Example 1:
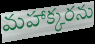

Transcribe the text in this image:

మహాక్కరను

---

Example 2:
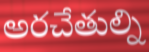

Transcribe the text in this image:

అరచేతుల్ని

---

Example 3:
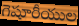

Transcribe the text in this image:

గెషూరీయుల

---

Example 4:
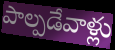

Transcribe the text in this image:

పాల్పడేవాళ్లు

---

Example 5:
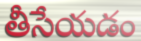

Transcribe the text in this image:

తీసేయడం